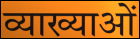
व्याख्याओं